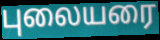
புலையரை